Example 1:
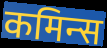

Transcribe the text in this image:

कमिन्स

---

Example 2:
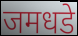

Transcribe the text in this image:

जमधडे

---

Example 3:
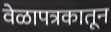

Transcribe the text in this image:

वेळापत्रकातून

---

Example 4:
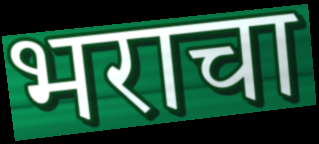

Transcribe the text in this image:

भराचा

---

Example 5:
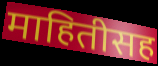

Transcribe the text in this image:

माहितीसह